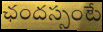
ఛందస్సంటే